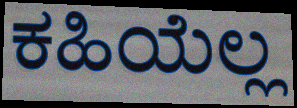
ಕಹಿಯೆಲ್ಲ